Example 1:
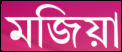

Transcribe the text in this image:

মজিয়া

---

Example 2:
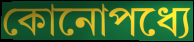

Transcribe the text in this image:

কোনোপধ্যে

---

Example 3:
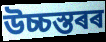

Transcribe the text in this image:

উচ্চস্তৰৰ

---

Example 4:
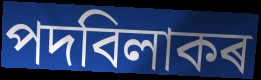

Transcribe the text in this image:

পদবিলাকৰ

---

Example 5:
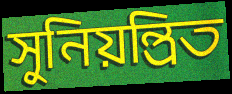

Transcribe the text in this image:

সুনিয়ন্ত্ৰিত